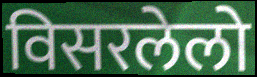
विसरलेलो